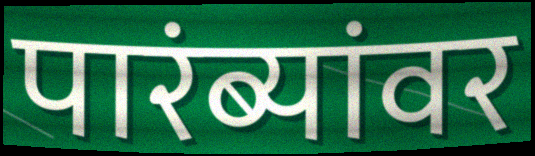
पारंब्यांवर